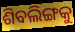
ଶିବଲିଙ୍ଗକୁ